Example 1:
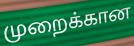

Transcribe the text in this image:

முறைக்கான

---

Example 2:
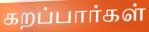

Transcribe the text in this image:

கறப்பார்கள்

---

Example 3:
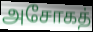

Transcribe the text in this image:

அசோகத்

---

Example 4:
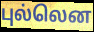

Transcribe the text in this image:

புல்லென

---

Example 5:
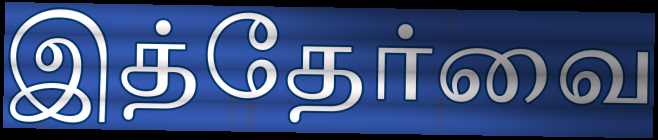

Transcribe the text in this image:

இத்தேர்வை